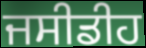
ਜਸੀਡੀਹ